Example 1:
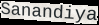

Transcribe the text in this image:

Sanandiya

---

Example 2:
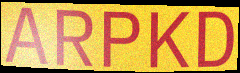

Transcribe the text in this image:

ARPKD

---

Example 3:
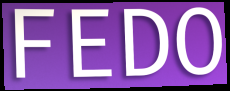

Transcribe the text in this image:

FEDO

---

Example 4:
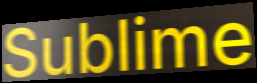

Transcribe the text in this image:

Sublime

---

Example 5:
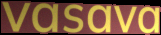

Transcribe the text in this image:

vasava